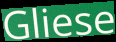
Gliese